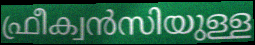
ഫ്രീക്വൻസിയുള്ള